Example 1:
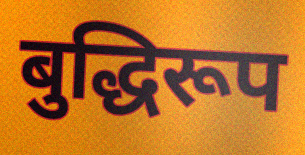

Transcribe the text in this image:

बुद्धिरूप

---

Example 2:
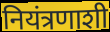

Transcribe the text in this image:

नियंत्रणाशी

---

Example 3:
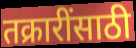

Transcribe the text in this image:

तक्रारींसाठी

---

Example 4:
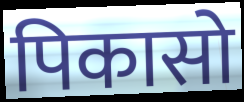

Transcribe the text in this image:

पिकासो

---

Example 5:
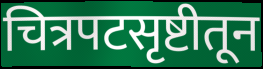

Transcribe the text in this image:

चित्रपटसृष्टीतून